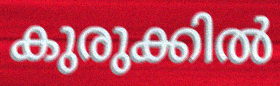
കുരുക്കിൽ